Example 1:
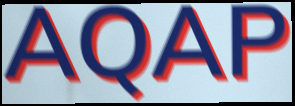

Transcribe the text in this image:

AQAP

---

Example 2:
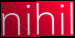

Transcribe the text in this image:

nihil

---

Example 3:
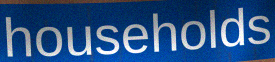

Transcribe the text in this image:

households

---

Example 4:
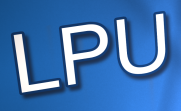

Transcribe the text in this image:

LPU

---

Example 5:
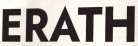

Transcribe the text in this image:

ERATH